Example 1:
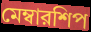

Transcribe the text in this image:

মেম্বারশিপ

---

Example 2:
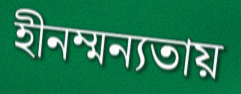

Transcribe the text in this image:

হীনম্মন্যতায়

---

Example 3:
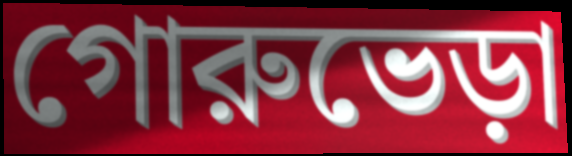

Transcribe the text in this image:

গোরুভেড়া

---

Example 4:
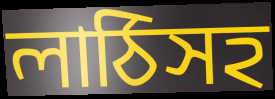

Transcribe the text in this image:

লাঠিসহ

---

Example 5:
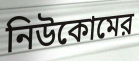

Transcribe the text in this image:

নিউকোমের